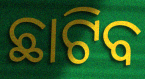
ଛାଟିବ